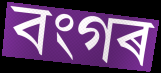
বংগৰ